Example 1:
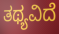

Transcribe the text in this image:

ತಥ್ಯವಿದೆ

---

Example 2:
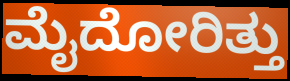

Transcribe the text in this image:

ಮೈದೋರಿತ್ತು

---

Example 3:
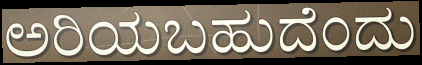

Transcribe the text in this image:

ಅರಿಯಬಹುದೆಂದು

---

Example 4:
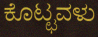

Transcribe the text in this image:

ಕೊಟ್ಟವಳು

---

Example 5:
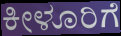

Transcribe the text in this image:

ಕೀಳೂರಿಗೆ